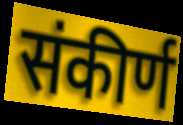
संकीर्ण